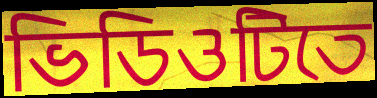
ভিডিওটিতে